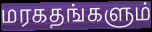
மரகதங்களும்